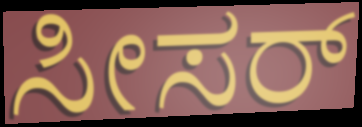
ಸೀಸರ್